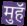
मुहॅ